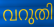
വറുതി